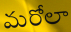
మరోలా